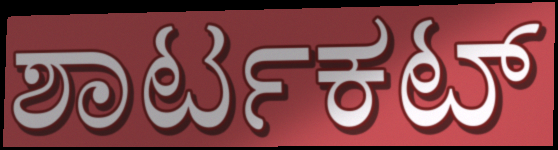
ಶಾರ್ಟಕಟ್